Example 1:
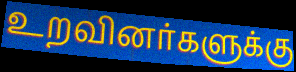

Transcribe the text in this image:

உறவினர்களுக்கு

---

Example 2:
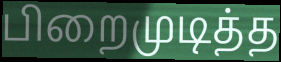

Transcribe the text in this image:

பிறைமுடித்த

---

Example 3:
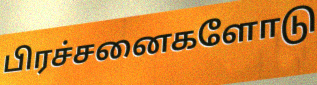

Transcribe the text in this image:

பிரச்சனைகளோடு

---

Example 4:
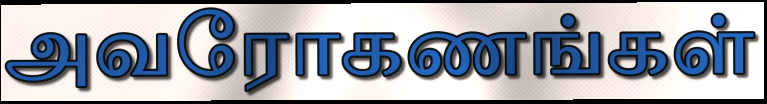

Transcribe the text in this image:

அவரோகணங்கள்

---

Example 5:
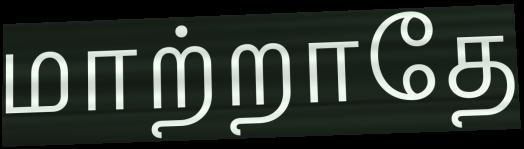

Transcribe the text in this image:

மாற்றாதே